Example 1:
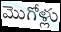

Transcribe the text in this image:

మొగోళ్లు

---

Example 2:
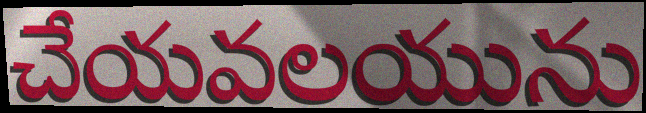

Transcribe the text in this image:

చేయవలయును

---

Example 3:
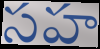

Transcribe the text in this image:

సహ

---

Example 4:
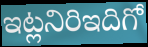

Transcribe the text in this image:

ఇట్లనిరిఇదిగో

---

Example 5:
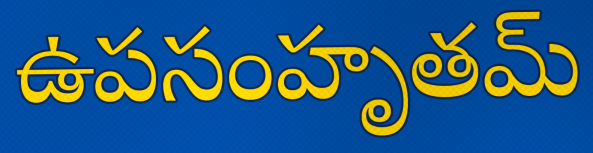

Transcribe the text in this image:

ఉపసంహృతమ్